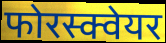
फोरस्क्वेयर